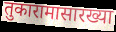
तुकारामासारख्या